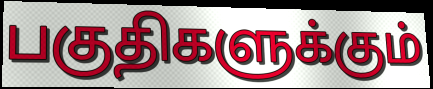
பகுதிகளுக்கும்